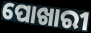
ପୋଖାରୀ